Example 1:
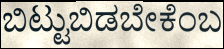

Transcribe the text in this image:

ಬಿಟ್ಟುಬಿಡಬೇಕೆಂಬ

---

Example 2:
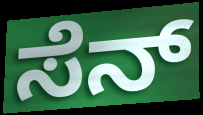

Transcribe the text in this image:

ಸೆನ್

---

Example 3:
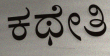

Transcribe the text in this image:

ಕಥೇತಿ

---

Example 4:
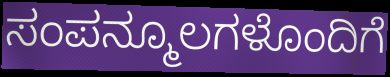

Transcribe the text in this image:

ಸಂಪನ್ಮೂಲಗಳೊಂದಿಗೆ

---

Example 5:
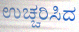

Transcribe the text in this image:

ಉಚ್ಚರಿಸಿದ